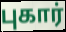
புகார்